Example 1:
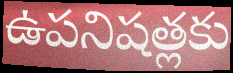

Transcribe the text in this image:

ఉపనిషత్లకు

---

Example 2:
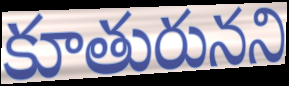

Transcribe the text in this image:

కూతురునని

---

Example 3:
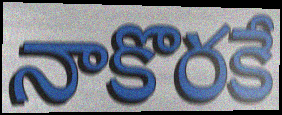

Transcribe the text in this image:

నాకొరకే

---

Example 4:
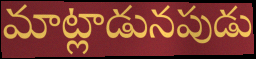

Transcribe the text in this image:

మాట్లాడునపుడు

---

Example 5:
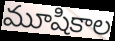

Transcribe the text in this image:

మూషికాల